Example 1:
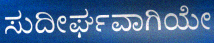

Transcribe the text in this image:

ಸುದೀರ್ಘವಾಗಿಯೇ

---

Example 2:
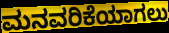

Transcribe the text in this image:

ಮನವರಿಕೆಯಾಗಲು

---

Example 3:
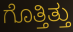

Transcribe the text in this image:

ಗೊತ್ತಿತ್ತು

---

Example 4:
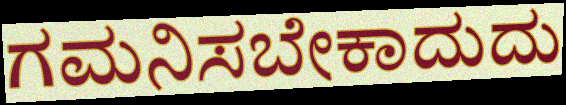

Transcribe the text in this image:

ಗಮನಿಸಬೇಕಾದುದು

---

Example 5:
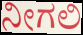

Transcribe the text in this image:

ನೀಗಲಿ